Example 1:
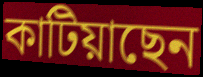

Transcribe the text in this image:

কাটিয়াছেন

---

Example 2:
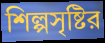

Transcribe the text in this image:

শিল্পসৃষ্টির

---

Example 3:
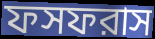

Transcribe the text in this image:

ফসফরাস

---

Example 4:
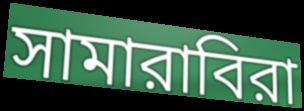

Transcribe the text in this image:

সামারাবিরা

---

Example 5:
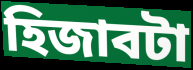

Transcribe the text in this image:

হিজাবটা